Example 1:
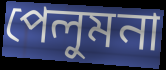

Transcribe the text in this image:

পেলুমনা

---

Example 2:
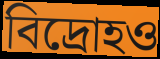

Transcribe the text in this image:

বিদ্রোহও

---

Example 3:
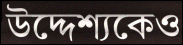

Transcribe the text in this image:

উদ্দেশ্যকেও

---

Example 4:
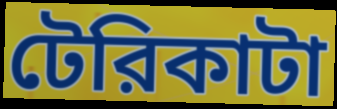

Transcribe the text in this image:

টেরিকাটা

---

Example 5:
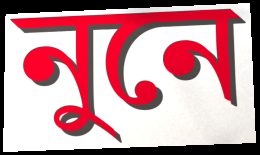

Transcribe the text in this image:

নুনে